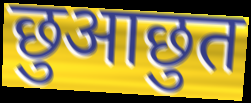
छुआछुत